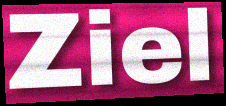
Ziel